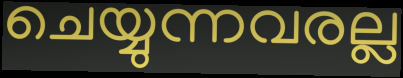
ചെയ്യുന്നവരല്ല